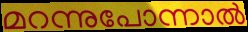
മറന്നുപോന്നാൽ